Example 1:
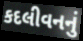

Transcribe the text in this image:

કદલીવનનું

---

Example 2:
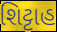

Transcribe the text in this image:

શિટ્ટાહ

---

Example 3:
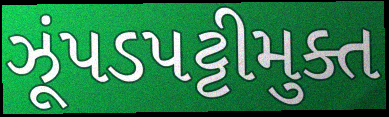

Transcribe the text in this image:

ઝૂંપડપટ્ટીમુક્ત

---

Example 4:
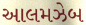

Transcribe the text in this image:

આલમઝેબ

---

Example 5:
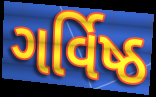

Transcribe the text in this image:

ગર્વિષ્ઠ